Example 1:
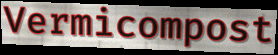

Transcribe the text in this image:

Vermicompost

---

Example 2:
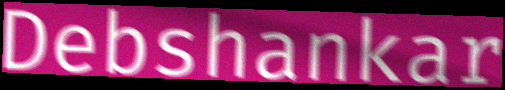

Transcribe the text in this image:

Debshankar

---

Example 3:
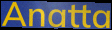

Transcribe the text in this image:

Anatta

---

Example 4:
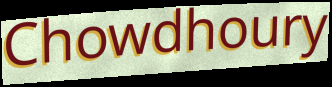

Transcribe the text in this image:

Chowdhoury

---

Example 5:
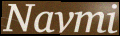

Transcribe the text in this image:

Navmi